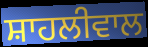
ਸ਼ਾਹਲੀਵਾਲ